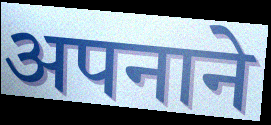
अपनाने